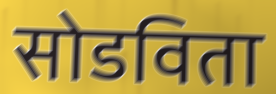
सोडविता